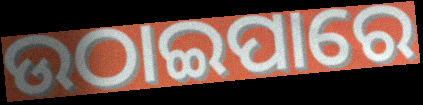
ଉଠାଇପାରେ